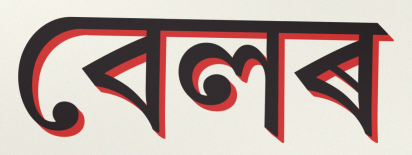
বেলৰ